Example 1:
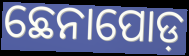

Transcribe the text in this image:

ଛେନାପୋଡ଼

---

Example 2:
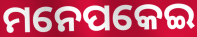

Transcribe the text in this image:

ମନେପକେଇ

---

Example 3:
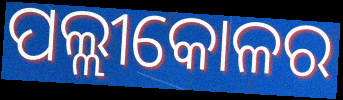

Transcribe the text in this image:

ପଲ୍ଲୀକୋଳର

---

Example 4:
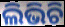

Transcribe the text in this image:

ଲିଭିଚି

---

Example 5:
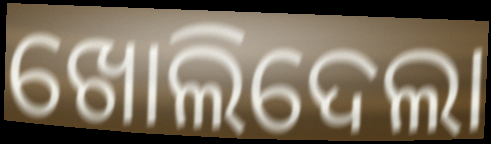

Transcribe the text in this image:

ଖୋଲିଦେଲା